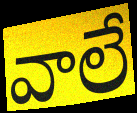
వాలే